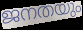
ജനതയും